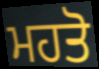
ਮਹਤੋ